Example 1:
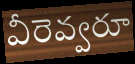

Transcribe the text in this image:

వీరెవ్వరూ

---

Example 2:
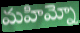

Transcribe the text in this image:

మహిమ్నో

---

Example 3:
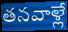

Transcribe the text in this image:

తనవాళ్లే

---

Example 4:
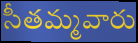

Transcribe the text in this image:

సీతమ్మవారు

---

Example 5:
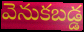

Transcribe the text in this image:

వెనుకబడ్డ